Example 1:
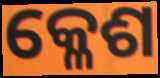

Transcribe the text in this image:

କ୍ଳେଶ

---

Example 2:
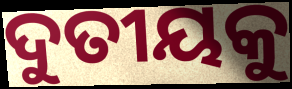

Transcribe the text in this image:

ଦୁତୀୟକୁ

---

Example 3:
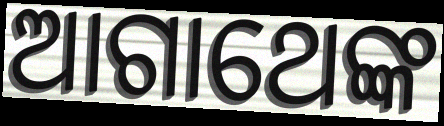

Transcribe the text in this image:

ଆଗାଥେଙ୍କ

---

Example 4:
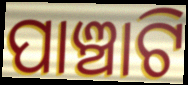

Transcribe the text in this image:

ପାଞ୍ଚାଟି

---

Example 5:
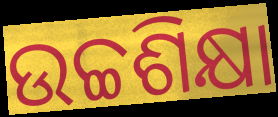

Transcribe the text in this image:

ଉଚ୍ଚଶିକ୍ଷା